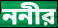
ননীর